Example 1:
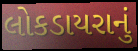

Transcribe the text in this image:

લોકડાયરાનું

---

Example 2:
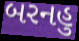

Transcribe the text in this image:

બરનહુ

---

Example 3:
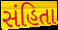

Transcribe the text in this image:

સંહિતા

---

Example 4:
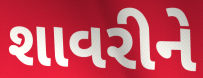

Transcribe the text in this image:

શાવરીને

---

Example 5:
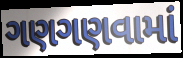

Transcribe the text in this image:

ગણગણવામાં